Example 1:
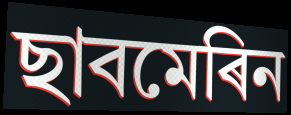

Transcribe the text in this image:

ছাবমেৰিন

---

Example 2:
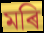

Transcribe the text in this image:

মৰি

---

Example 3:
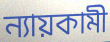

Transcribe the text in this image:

ন্যায়কামী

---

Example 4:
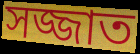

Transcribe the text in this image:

সজ্জাত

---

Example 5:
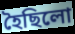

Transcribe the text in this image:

হৈছিলো